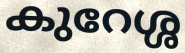
കുറേശ്ശ